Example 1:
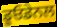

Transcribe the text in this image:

ਡੂਓਡੇਨਲ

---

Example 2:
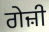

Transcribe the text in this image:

ਗੇਜ਼ੀ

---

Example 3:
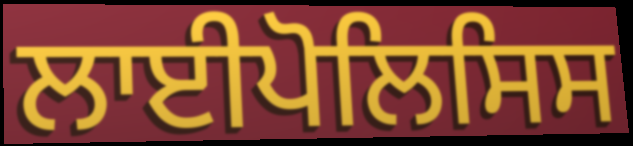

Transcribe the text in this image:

ਲਾਈਪੋਲਿਸਿਸ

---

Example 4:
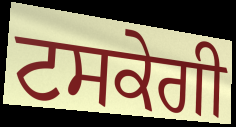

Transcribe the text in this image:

ਟਸਕੇਗੀ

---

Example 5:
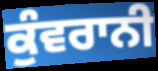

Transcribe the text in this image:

ਕੁੰਵਰਾਨੀ